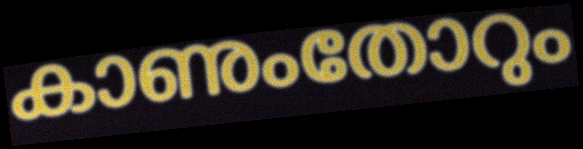
കാണുംതോറും